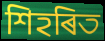
শিহৰিত